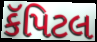
કૅપિટલ